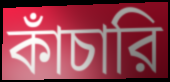
কাঁচারি